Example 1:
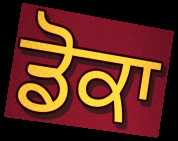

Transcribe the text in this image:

ਡੋਕਾ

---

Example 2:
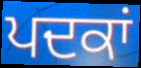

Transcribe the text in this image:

ਪਦਕਾਂ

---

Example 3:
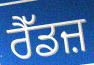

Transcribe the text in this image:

ਰੈੱਡਜ਼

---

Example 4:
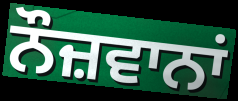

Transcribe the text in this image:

ਨੌਜ਼ਵਾਨਾਂ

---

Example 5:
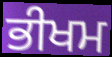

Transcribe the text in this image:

ਭੀਖਮ